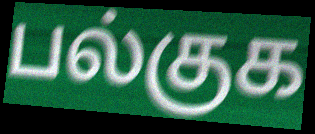
பல்குக